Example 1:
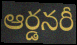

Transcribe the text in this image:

ఆర్డనరీ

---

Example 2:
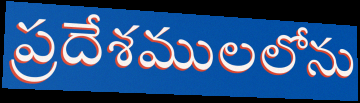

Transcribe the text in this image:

ప్రదేశములలోను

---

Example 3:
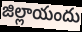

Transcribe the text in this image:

జిల్లాయందు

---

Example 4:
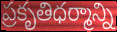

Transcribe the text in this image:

ప్రకృతిధర్మాన్ని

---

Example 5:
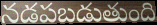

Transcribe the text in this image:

నడపబడుతుంది